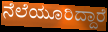
ನೆಲೆಯೂರಿದ್ದಾರೆ